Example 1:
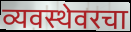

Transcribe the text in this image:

व्यवस्थेवरचा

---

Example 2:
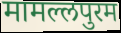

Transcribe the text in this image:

मामल्लपुरम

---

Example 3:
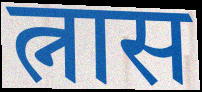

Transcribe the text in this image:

त्नास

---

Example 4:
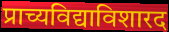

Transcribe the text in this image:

प्राच्यविद्याविशारद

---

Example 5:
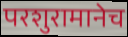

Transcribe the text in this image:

परशुरामानेच